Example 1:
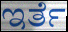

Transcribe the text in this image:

ಇರ್ತೆ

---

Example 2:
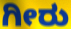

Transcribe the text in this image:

ಗೀರು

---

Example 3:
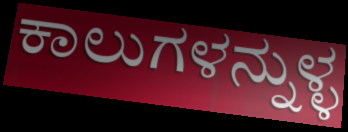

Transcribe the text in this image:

ಕಾಲುಗಳನ್ನುಳ್ಳ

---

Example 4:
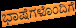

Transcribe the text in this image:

ಭಾಷೆಗಳೊಂದಿಗೆ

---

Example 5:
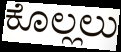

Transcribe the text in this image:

ಕೊಲ್ಲಲು